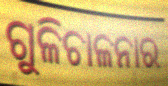
ଗୁଳିଚାଳନାର